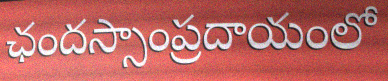
ఛందస్సాంప్రదాయంలో